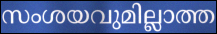
സംശയവുമില്ലാത്ത